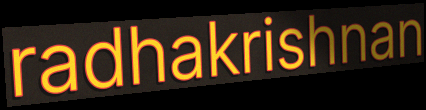
radhakrishnan